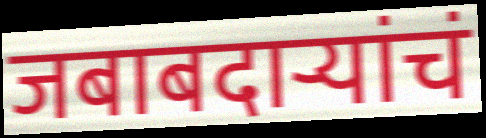
जबाबदार्‍यांचं